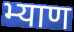
भ्याण